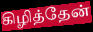
கிழித்தேன்